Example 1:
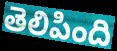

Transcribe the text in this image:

తెలిపింది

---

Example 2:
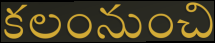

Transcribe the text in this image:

కలంనుంచి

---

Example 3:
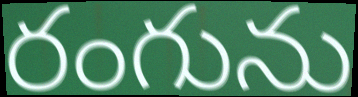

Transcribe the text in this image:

రంగును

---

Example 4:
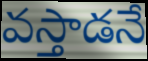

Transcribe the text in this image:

వస్తాడనే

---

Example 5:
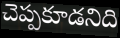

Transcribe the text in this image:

చెప్పకూడనిది